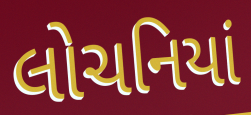
લોચનિયાં